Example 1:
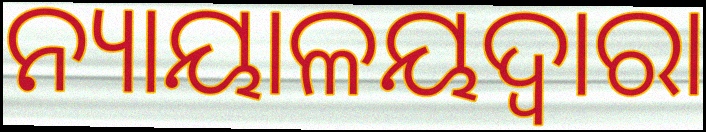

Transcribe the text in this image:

ନ୍ୟାୟାଳୟଦ୍ୱାରା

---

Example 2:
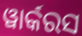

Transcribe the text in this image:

ୱାର୍କରସ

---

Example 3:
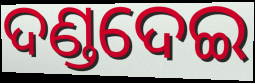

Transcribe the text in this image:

ଦଣ୍ଡଦେଇ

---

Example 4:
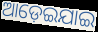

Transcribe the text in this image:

ଆଡ଼େଇଯାଇ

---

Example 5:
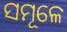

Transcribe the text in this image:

ସମୂଳେ